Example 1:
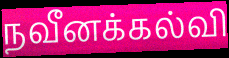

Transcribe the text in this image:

நவீனக்கல்வி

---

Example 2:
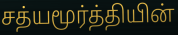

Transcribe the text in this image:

சத்யமூர்த்தியின்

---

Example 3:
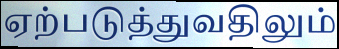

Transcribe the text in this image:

ஏற்படுத்துவதிலும்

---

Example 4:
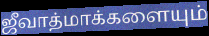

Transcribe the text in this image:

ஜீவாத்மாக்களையும்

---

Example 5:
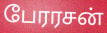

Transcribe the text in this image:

பேரரசன்